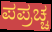
ಪಪ್ರಚ್ಚ